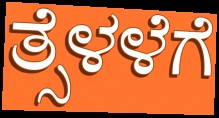
ತ್ಸೆಳಳೆಗೆ